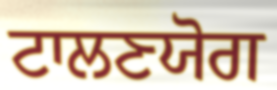
ਟਾਲਣਯੋਗ